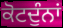
ਕੋਟਦੁੰਨਾਂ